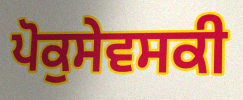
ਪੋਕੁਸੇਵਸਕੀ